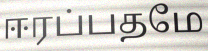
ஈரப்பதமே